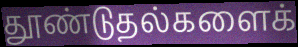
தூண்டுதல்களைக்